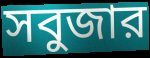
সবুজার